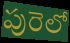
పురెలో